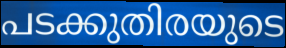
പടക്കുതിരയുടെ